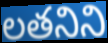
లతనిని